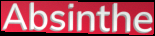
Absinthe